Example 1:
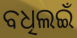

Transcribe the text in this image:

ବଧିଲଇଁ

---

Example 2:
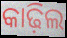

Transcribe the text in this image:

କାଢ଼ିଲ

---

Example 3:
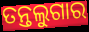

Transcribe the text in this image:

ତନ୍ତଲୁଗାର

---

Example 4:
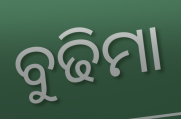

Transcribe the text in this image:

ବୁଢିମା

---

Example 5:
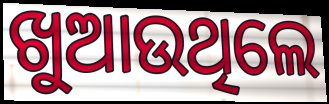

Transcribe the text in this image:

ଖୁଆଉଥିଲେ